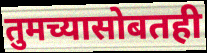
तुमच्यासोबतही